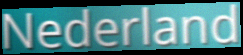
Nederland